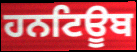
ਹਨਟਿਊਬ